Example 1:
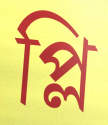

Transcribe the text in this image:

প্লি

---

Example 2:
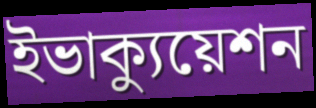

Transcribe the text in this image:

ইভাক্যুয়েশন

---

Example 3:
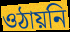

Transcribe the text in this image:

ওঠায়নি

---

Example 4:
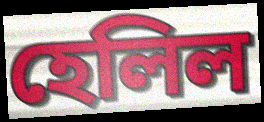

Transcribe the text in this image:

হেলিল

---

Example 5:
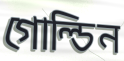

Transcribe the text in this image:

গোল্ডিন